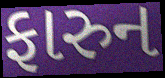
ફારુન